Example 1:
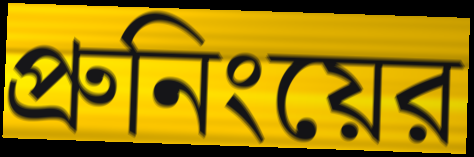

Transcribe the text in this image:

প্রুনিংয়ের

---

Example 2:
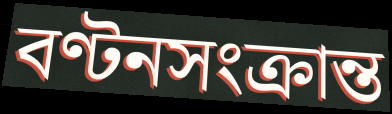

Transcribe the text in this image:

বণ্টনসংক্রান্ত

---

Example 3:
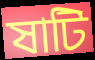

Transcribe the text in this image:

ষাটি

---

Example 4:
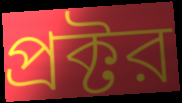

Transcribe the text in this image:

প্রক্টর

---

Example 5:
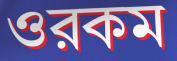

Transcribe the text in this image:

ওরকম